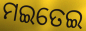
ମଇତେଇ